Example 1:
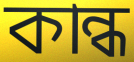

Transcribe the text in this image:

কান্ধ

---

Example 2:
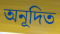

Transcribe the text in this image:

অনূদিত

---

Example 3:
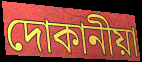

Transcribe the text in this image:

দোকানীয়া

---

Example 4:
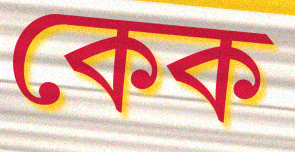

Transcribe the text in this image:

কেক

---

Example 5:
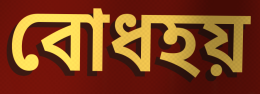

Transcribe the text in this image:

বোধহয়